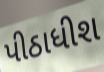
પીઠાધીશ